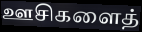
ஊசிகளைத்